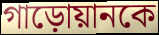
গাড়োয়ানকে